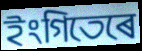
ইংগিতেৰে